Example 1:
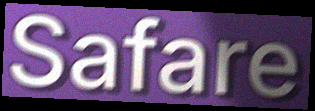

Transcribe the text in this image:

Safare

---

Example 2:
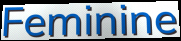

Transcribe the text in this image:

Feminine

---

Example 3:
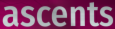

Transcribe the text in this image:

ascents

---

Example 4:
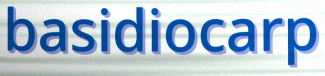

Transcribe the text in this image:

basidiocarp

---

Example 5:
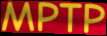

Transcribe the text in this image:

MPTP